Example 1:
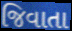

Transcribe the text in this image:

જિવાતા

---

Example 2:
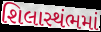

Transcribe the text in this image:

શિલાસ્થંભમાં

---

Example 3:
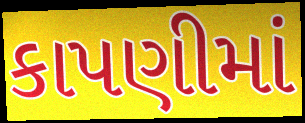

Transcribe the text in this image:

કાપણીમાં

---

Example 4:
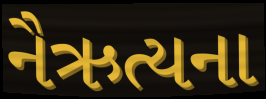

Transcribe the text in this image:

નૈઋત્યના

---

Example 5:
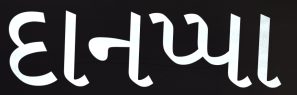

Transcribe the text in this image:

દાનપ્પા